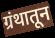
ग्रंथातून